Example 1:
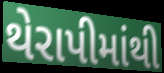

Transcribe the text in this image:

થેરાપીમાંથી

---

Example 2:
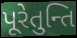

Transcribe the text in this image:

પૂરેતુન્તિ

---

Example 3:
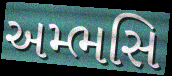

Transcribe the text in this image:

અમ્ભસિ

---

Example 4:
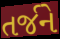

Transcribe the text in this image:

તર્જને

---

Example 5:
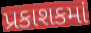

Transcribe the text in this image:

પ્રકાશકમાં